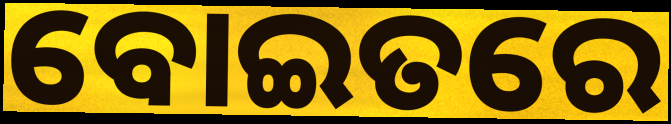
ବୋଇତରେ